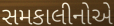
સમકાલીનોએ